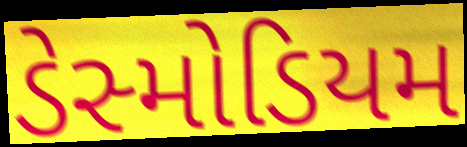
ડેસ્મોડિયમ